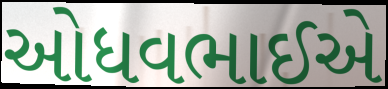
ઓધવભાઈએ